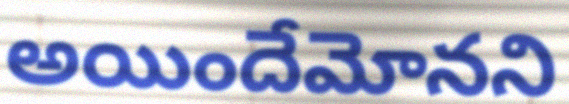
అయిందేమోనని